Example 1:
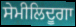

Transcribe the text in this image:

ਸੇਮੀਲਿਦੂਗਾ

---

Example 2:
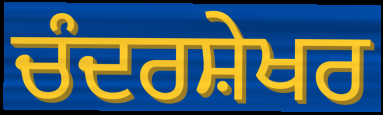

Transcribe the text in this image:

ਚੰਦਰਸ਼ੇਖਰ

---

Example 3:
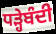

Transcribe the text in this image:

ਧੜ੍ਹੇਬੰਦੀ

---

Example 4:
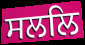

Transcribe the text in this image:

ਸਲਲਿ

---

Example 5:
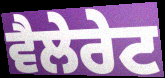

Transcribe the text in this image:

ਵੈਲੇਰੇਟ